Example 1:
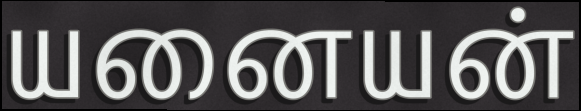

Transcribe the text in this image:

யனையன்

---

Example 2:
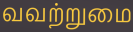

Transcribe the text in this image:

வவற்றுமை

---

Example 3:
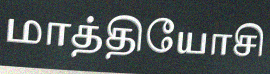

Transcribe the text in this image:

மாத்தியோசி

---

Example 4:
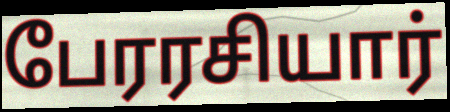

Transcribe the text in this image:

பேரரசியார்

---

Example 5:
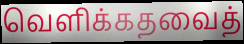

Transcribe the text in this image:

வெளிக்கதவைத்